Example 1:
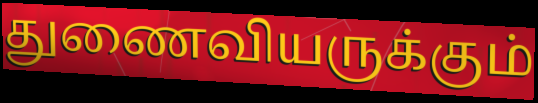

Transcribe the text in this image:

துணைவியருக்கும்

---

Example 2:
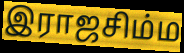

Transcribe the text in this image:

இராஜசிம்ம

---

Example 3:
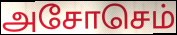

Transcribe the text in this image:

அசோசெம்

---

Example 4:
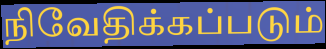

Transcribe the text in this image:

நிவேதிக்கப்படும்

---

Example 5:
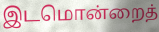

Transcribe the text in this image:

இடமொன்றைத்